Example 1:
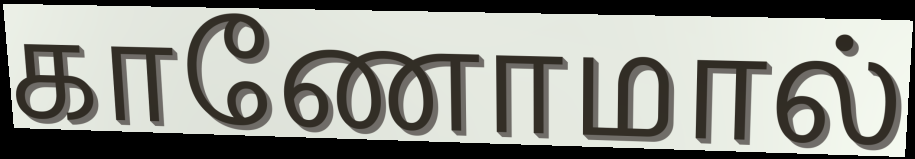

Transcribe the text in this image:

காணோமால்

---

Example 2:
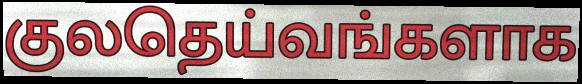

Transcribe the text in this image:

குலதெய்வங்களாக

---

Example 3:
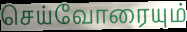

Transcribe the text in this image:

செய்வோரையும்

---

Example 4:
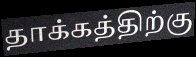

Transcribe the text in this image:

தாக்கத்திற்கு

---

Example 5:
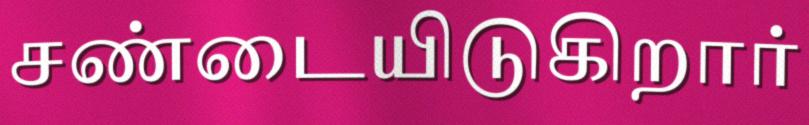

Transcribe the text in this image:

சண்டையிடுகிறார்